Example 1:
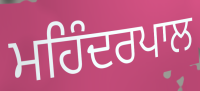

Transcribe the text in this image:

ਮਹਿੰਦਰਪਾਲ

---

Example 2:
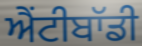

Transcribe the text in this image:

ਐਂਟੀਬਾੱਡੀ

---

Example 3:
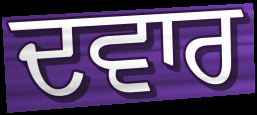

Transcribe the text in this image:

ਦਵਾਰ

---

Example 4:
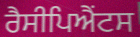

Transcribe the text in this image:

ਰੈਸੀਪਿਐਂਟਸ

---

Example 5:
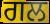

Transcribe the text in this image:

ਗਲ